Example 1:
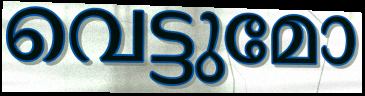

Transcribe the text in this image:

വെട്ടുമോ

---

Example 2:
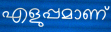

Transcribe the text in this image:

എളുപ്പമാണ്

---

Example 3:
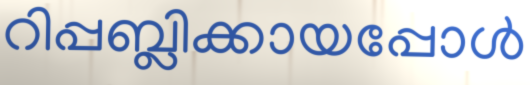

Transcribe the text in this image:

റിപ്പബ്ലിക്കായപ്പോൾ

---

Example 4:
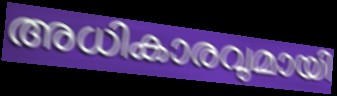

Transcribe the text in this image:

അധികാരവുമായി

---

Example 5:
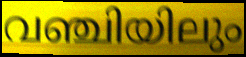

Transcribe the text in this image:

വഞ്ചിയിലും